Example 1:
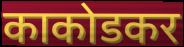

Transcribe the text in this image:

काकोडकर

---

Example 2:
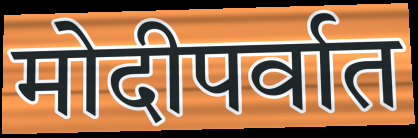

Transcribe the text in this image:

मोदीपर्वात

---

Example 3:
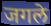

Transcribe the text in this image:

जगले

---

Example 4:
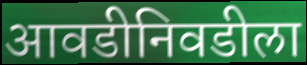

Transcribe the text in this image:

आवडीनिवडीला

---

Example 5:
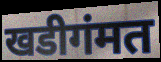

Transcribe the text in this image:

खडीगंमत